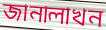
জানালাখন